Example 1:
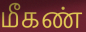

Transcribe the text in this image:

மீகண்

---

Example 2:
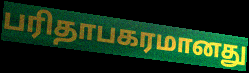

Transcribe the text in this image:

பரிதாபகரமானது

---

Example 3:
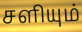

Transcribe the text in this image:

சளியும்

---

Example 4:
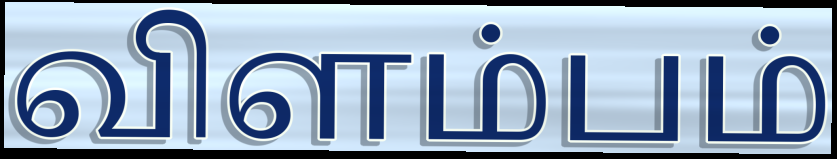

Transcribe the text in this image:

விளம்பம்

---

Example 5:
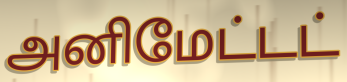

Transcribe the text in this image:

அனிமேட்டட்